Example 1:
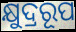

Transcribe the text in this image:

କ୍ଷୁଦ୍ରରୂପ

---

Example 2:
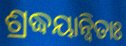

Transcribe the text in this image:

ଶ୍ରଦ୍ଧୟାନ୍ୱିତାଃ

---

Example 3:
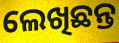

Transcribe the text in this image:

ଲେଖିଛନ୍ତ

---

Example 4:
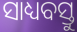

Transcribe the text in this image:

ସାଧ୍ୟବସ୍ତୁ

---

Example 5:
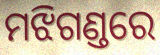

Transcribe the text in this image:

ମଝିଗଣ୍ଡରେ